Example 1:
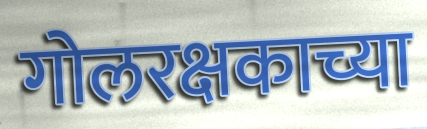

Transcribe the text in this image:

गोलरक्षकाच्या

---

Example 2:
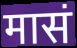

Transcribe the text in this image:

मासं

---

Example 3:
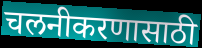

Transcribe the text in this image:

चलनीकरणासाठी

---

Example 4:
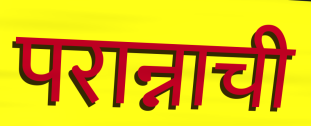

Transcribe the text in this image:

परान्नाची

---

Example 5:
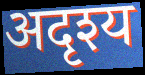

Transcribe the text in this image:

अदृश्य